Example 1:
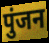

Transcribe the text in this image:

पुंजन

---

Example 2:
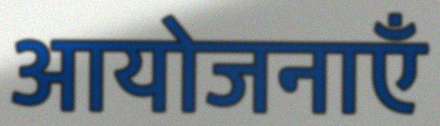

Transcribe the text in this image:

आयोजनाएँ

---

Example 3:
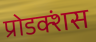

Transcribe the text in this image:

प्रोडक्शंस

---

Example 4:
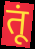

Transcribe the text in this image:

तूं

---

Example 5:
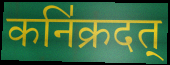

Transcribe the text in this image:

कनि॑क्रदत्